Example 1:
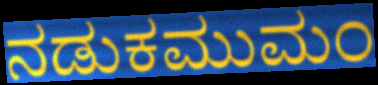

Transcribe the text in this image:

ನಡುಕಮುಮಂ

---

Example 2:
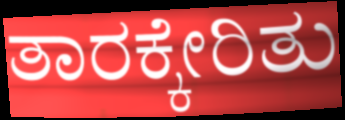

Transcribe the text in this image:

ತಾರಕ್ಕೇರಿತು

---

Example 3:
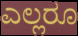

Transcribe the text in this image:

ಎಲ್ಲರೂ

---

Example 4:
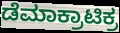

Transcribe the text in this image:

ಡೆಮಾಕ್ರಾಟಿಕ್ರ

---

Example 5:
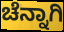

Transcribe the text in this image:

ಚೆನ್ನಾಗಿ